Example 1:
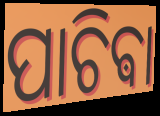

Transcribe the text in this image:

ପାଚିଵା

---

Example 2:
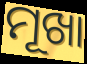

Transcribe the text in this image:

ମୂଖା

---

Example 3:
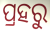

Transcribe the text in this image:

ପ୍ରହରୁ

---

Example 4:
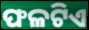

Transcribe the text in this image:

ଫଳଟିଏ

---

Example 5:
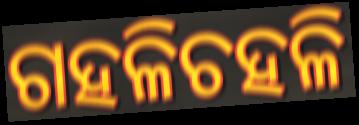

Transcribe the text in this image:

ଗହଳିଚହଳି